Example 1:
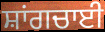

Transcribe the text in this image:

ਸ਼ਾਂਗਚਾਈ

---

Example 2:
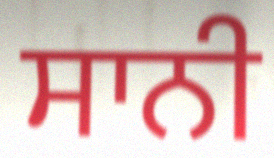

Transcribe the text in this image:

ਸਾਨੀ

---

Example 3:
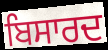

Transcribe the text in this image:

ਬਿਸਾਰਦ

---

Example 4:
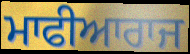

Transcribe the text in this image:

ਮਾਫੀਆਰਾਜ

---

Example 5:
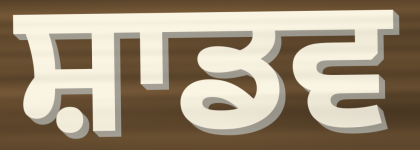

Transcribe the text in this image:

ਸ਼ਾਡਵ